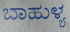
ಬಾಹುಳ್ಯ